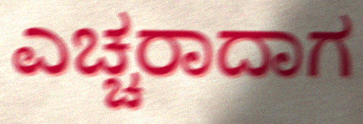
ಎಚ್ಚರಾದಾಗ